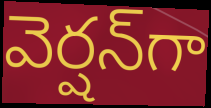
వెర్షన్‌గా